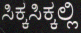
ಸಿಕ್ಕಸಿಕ್ಕಲ್ಲಿ